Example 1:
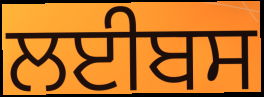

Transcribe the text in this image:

ਲਈਬਸ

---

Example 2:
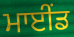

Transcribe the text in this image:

ਮਾਈਂਡ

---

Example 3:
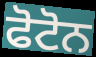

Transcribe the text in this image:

ਫੋਟੋਨ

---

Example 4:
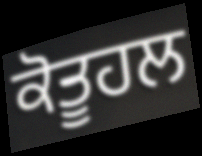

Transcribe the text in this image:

ਕੋਤੂਹਲ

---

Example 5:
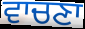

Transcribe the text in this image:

ਵਾਚਣਾ